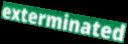
exterminated